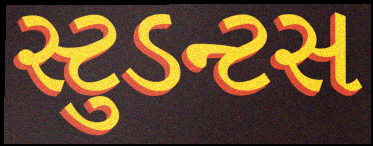
સ્ટુડન્ટસ